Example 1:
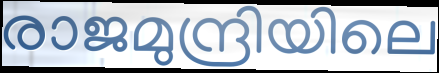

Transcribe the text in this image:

രാജമുന്ദ്രിയിലെ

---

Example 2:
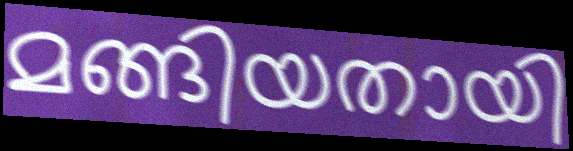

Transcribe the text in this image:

മങ്ങിയതായി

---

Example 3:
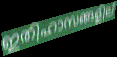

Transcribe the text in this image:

ഇതിഹാസങ്ങളില്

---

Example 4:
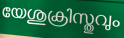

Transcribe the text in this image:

യേശുക്രിസ്തുവും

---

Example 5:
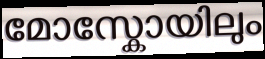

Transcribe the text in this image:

മോസ്കോയിലും